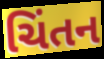
ચિંતન